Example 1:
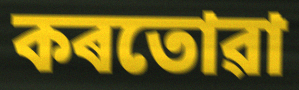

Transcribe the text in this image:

কৰতোৱা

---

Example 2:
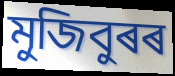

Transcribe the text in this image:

মুজিবুৰৰ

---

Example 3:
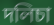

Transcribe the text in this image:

দলিচা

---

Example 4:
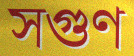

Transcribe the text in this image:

সগুণ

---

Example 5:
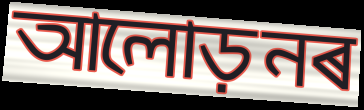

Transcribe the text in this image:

আলোড়নৰ